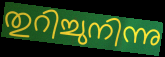
തുറിച്ചുനിന്നു